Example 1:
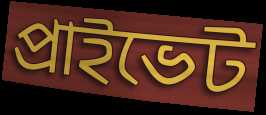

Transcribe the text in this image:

প্ৰাইভেট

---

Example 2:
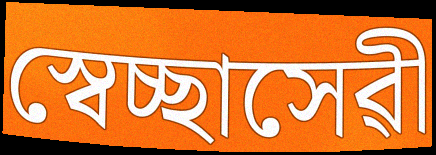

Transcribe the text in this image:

স্বেচ্ছাসেৱী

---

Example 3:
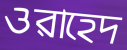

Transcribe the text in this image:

ওৱাহেদ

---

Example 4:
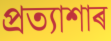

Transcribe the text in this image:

প্ৰত্যাশাৰ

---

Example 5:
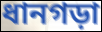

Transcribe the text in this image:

ধানগড়া